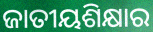
ଜାତୀୟଶିକ୍ଷାର